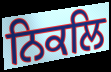
ਨਿਕਲਿ